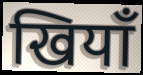
खियाँ